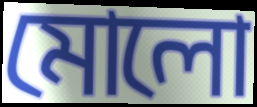
মোলো